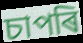
চাপৰি